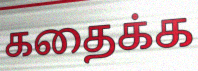
கதைக்க